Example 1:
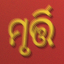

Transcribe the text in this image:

ମୃର୍ତ୍ତି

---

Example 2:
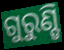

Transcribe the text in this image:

ଗୁରୁଣ୍ଡି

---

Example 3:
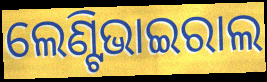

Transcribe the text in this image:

ଲେଣ୍ଟିଭାଇରାଲ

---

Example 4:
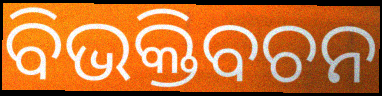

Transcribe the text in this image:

ବିଭକ୍ତିବଚନ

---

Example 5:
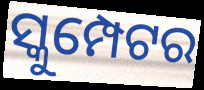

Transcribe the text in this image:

ସ୍କୁମ୍ପେଟର